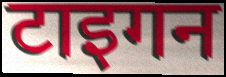
टाइगन